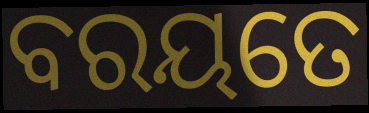
ବରୟତେ